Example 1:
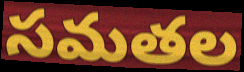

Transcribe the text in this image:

సమతల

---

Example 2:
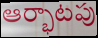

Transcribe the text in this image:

ఆర్భాటపు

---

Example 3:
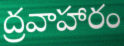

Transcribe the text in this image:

ద్రవాహారం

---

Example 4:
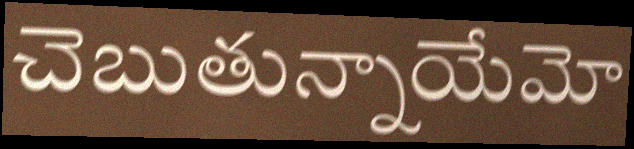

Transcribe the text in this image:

చెబుతున్నాయేమో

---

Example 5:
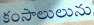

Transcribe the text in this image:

కంసాలులును